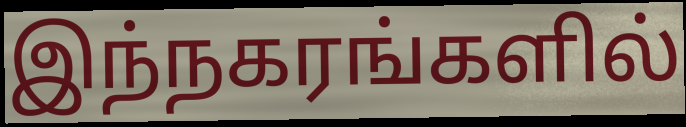
இந்நகரங்களில்